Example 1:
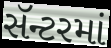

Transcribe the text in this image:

સૅન્ટરમાં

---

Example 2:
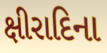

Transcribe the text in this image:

ક્ષીરાદિના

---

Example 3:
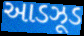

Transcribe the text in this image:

આડઝૂડ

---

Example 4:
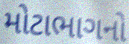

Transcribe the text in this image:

મોટાભાગનો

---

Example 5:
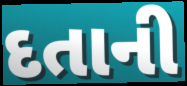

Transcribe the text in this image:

દતાની